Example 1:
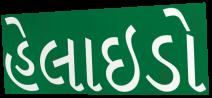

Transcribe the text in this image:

હેલાઇડો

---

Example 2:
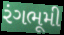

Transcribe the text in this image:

રંગભૂમી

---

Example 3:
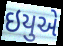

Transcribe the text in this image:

ઇયુએ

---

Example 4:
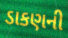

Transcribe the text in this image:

ડાકણની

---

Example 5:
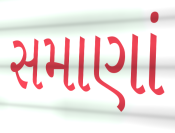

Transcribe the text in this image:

સમાણાં